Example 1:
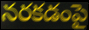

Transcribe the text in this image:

నరకడంపై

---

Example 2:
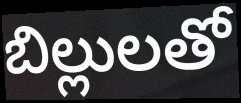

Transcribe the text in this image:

బిల్లులతో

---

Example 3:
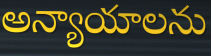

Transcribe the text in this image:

అన్యాయాలను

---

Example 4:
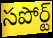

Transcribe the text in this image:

సపోర్ట్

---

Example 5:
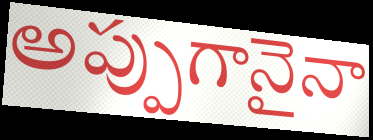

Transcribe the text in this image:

అప్పుగానైనా